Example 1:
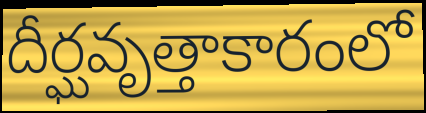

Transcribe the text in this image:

దీర్ఘవృత్తాకారంలో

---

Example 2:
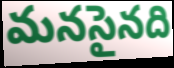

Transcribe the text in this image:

మనసైనది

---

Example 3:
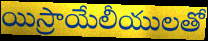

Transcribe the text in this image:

యిస్రాయేలీయులతో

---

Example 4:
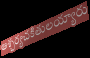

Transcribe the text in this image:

ఆశ్చర్యచకితులయ్యారు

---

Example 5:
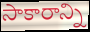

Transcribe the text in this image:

సాకారాన్ని